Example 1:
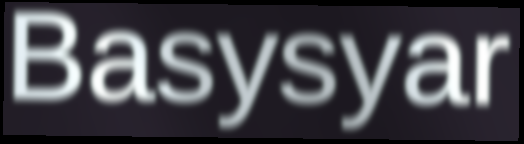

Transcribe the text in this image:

Basysyar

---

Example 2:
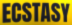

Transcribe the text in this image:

ECSTASY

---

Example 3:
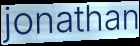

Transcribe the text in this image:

jonathan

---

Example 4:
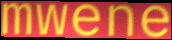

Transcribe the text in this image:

mwene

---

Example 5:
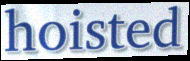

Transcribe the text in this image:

hoisted